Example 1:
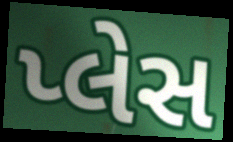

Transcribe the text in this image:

પ્લેસ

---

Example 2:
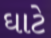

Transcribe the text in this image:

ઘાટે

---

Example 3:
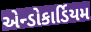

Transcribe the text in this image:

એન્ડોકાર્ડિયમ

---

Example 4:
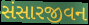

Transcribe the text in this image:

સંસારજીવન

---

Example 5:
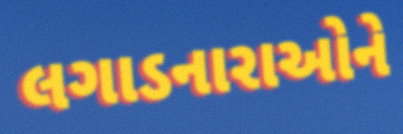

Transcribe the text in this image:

લગાડનારાઓને